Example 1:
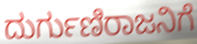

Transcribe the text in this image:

ದುರ್ಗುಣಿರಾಜನಿಗೆ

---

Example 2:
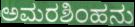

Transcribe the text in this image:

ಅಮರಶಿಂಹನು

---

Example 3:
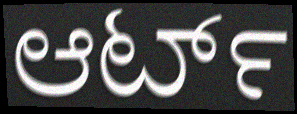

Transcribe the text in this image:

ಆರ್ಟ್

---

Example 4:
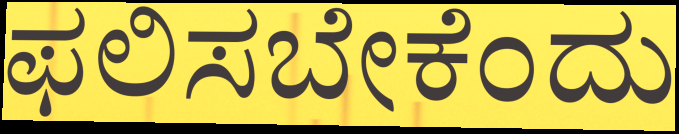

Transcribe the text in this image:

ಫಲಿಸಬೇಕೆಂದು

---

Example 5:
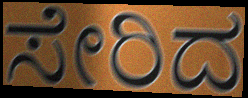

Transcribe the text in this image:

ಸೇರಿದ